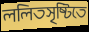
ললিতসৃষ্টিতে